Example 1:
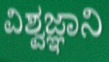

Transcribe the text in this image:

ವಿಶ್ವಜ್ಞಾನಿ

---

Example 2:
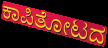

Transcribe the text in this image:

ಕಾಪಿತೋಟದ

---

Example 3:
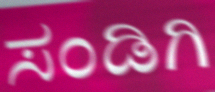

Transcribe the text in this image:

ಸಂಡಿಗಿ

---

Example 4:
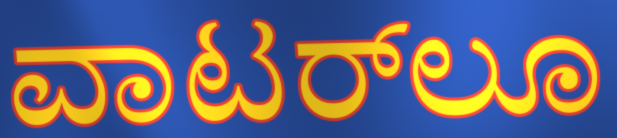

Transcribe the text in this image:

ವಾಟರ್‌ಲೂ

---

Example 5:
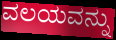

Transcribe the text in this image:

ವಲಯವನ್ನು